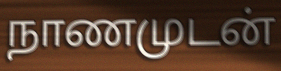
நாணமுடன்